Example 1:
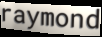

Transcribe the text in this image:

raymond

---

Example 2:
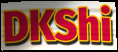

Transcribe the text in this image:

DKShi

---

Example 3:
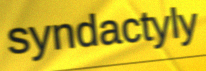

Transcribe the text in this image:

syndactyly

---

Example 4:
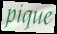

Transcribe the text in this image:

pique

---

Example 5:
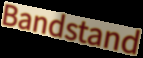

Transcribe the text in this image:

Bandstand